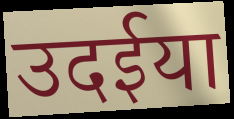
उदईया